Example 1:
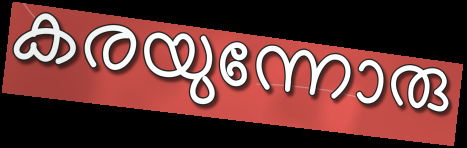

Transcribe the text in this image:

കരയുന്നോരു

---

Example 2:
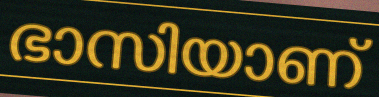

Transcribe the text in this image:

ഭാസിയാണ്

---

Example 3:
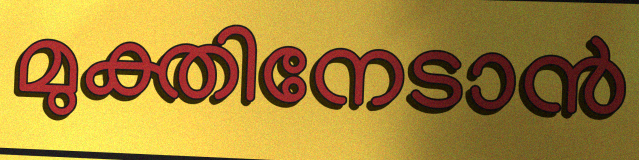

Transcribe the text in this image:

മുക്തിനേടാൻ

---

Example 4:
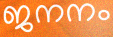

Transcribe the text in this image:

ജനനം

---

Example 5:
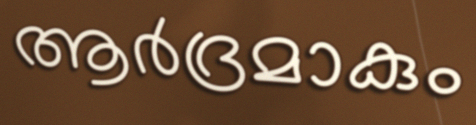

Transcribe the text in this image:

ആർദ്രമാകും